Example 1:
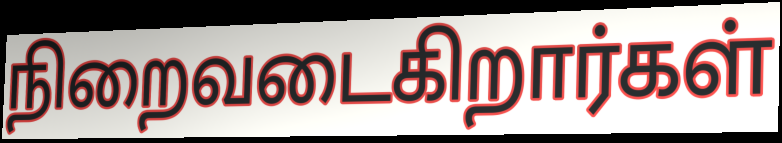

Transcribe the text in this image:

நிறைவடைகிறார்கள்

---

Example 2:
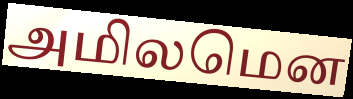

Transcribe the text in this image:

அமிலமென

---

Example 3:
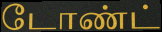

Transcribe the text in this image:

டோண்ட்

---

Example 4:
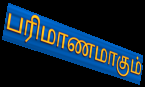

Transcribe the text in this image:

பரிமாணமாகும்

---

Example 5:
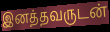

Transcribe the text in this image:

இனத்தவருடன்